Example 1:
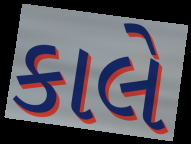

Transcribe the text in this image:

કાલે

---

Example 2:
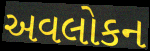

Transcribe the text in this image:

અવલોકન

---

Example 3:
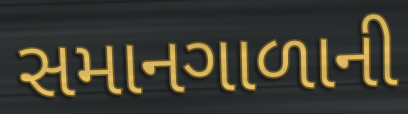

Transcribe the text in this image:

સમાનગાળાની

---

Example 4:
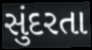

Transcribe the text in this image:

સુંદરતા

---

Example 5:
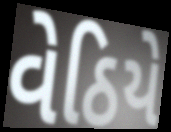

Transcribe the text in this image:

વેઠિયે